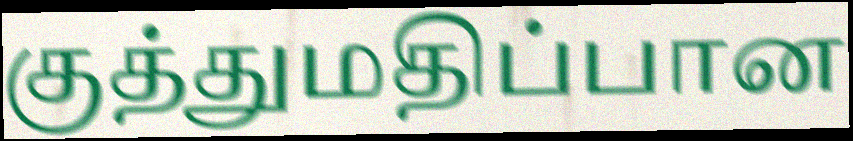
குத்துமதிப்பான